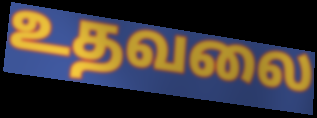
உதவலை